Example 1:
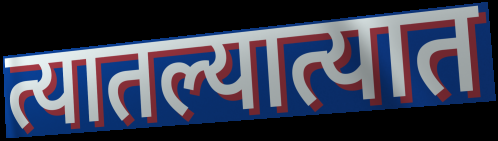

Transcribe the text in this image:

त्यातल्यात्यात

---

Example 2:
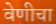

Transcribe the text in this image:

वेणीचा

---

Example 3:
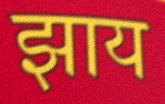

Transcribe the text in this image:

झाय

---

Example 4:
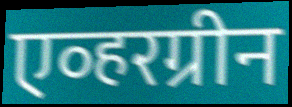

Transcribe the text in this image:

एव्हरग्रीन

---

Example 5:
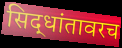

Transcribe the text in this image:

सिद्धांतावरच